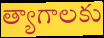
త్యాగాలకు